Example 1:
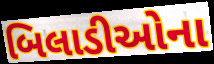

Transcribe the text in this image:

બિલાડીઓના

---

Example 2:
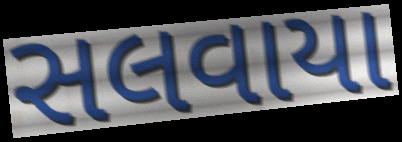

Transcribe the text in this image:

સલવાયા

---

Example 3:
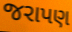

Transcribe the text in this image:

જરાપણ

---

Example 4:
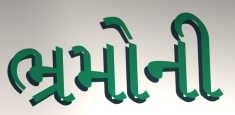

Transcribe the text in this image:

ભ્રમોની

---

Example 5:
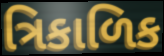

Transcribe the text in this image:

ત્રિકાળિક